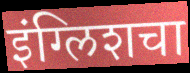
इंग्लिशचा